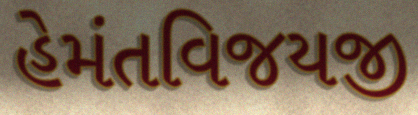
હેમંતવિજયજી